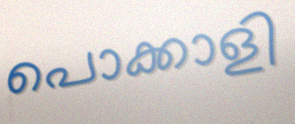
പൊക്കാളി